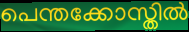
പെന്തക്കോസ്തിൽ